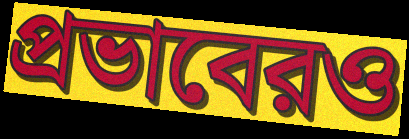
প্রভাবেরও